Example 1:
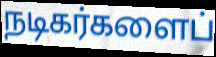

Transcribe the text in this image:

நடிகர்களைப்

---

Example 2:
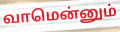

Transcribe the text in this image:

வாமென்னும்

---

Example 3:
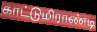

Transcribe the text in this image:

காட்டுமிராண்டி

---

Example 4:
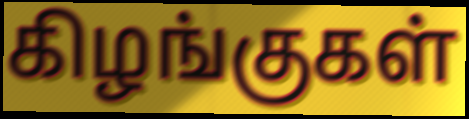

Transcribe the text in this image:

கிழங்குகள்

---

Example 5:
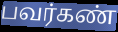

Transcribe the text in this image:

பவர்கண்